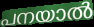
പനയാൽ